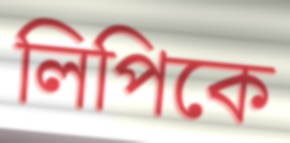
লিপিকে